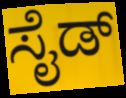
ಸೈಡ್